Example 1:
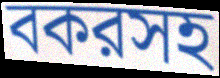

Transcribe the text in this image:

বকরসহ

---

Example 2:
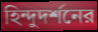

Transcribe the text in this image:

হিন্দুদর্শনের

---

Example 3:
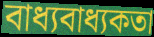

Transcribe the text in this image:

বাধ্যবাধ্যকতা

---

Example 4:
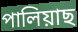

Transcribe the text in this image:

পালিয়াছ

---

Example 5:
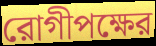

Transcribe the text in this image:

রোগীপক্ষের